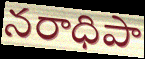
నరాధిపా